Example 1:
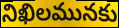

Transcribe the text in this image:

నిఖిలమునకు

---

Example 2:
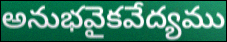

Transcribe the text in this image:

అనుభవైకవేద్యము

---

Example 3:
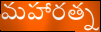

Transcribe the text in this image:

మహారత్న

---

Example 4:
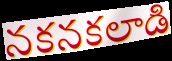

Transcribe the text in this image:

నకనకలాడి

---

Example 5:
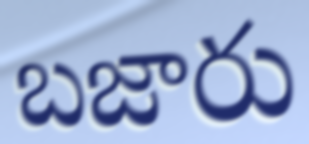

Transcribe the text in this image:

బజారు